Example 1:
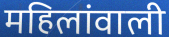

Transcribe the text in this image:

महिलांवाली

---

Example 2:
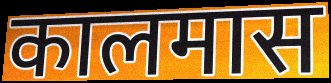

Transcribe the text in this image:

कालमास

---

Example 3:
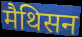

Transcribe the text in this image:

मैथिसन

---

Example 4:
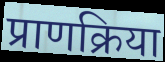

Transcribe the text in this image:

प्राणक्रिया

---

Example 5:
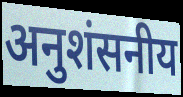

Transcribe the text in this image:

अनुशंसनीय